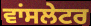
ਵਾਂਸਲੇਟਰ